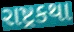
રાષ્ટ્રકથા